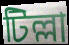
টিল্লা